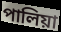
পালিয়া